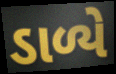
ડાળ્યે